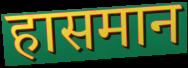
हासमान